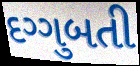
દગ્ગુબતી